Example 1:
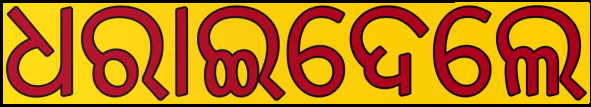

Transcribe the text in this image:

ଧରାଇଦେଲେ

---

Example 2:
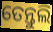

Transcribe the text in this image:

ତେନ୍ତୁଲି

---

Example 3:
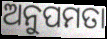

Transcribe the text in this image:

ଅନୁପମତା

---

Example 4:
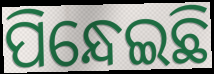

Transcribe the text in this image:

ପିନ୍ଧେଇଛି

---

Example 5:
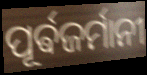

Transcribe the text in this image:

ପୂର୍ଵଜର୍ମାନୀ